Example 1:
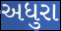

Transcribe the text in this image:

અધુરા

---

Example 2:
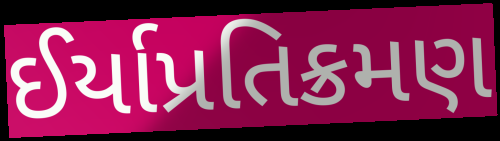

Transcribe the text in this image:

ઈર્યાપ્રતિક્રમણ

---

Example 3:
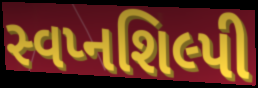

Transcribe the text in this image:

સ્વપ્નશિલ્પી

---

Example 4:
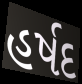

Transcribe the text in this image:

હર્ષદ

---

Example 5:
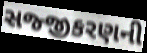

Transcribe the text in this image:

સજ્જીકરણની